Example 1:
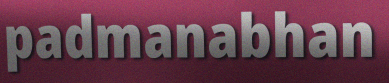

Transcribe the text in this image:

padmanabhan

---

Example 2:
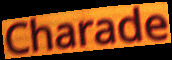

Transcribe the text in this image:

Charade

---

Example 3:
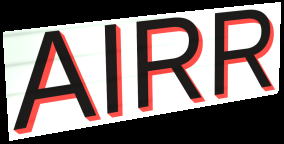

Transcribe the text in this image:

AIRR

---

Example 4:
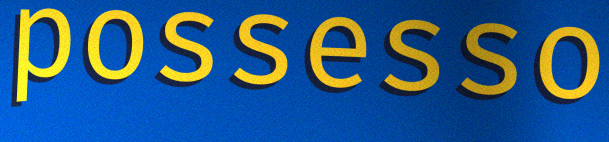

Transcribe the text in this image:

possesso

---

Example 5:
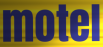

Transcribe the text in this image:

motel